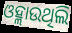
ଓହ୍ଲାଉଥିଲି